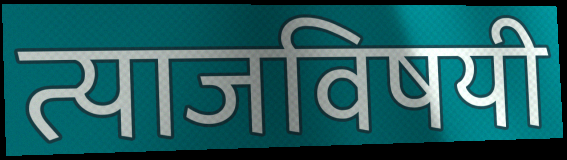
त्याजविषयी